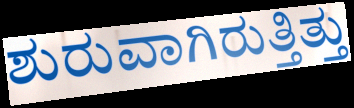
ಶುರುವಾಗಿರುತ್ತಿತ್ತು